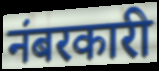
नंबरकारी